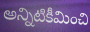
అన్నిటికీమించి